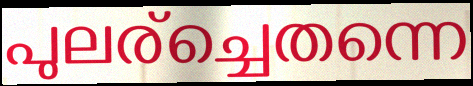
പുലര്ച്ചെതന്നെ